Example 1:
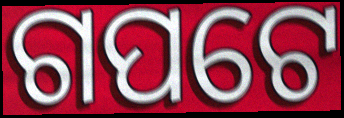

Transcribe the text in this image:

ଗପଟେ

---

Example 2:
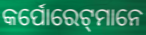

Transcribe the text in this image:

କର୍ପୋରେଟ୍‌ମାନେ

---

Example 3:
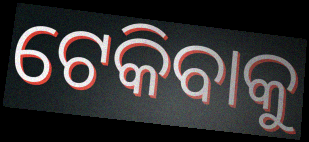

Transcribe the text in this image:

ଟେକିବାକୁ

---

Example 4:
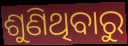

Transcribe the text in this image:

ଶୁଣିଥିବାରୁ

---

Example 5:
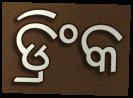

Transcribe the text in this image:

ଡ୍ରିଂକ